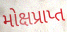
મોક્ષપ્રાપ્ત